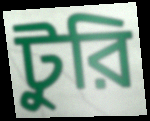
টুরি